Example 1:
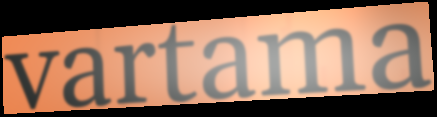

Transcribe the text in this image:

vartama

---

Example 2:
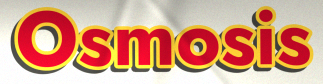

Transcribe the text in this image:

Osmosis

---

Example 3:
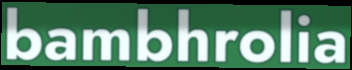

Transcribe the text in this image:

bambhrolia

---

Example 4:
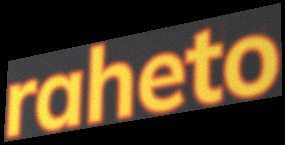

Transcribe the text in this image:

raheto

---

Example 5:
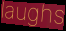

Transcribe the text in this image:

laughs